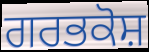
ਗਰਭਕੋਸ਼